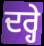
ਦਰ੍ਹੇ